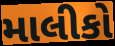
માલીકો